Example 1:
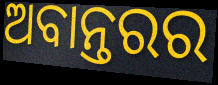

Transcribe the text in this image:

ଅବାନ୍ତରର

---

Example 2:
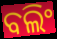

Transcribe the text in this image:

ବଲିଂ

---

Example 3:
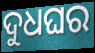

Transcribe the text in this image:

ଦୁଧଘର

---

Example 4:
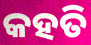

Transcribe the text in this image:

କହତି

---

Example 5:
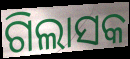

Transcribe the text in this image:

ଗିଲାସକ